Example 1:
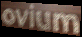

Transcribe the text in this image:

ovium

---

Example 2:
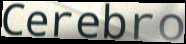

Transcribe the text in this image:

Cerebro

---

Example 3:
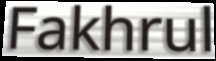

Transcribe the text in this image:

Fakhrul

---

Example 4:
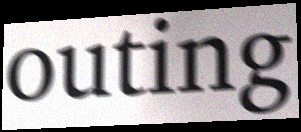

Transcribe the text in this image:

outing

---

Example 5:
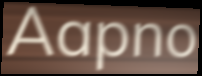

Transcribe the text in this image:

Aapno